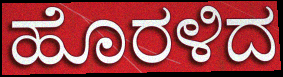
ಹೊರಳಿದ